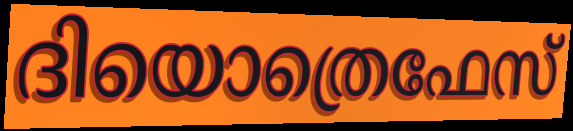
ദിയൊത്രെഫേസ്